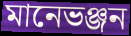
মানেভঞ্জন